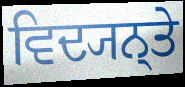
ਵਿਦ੍ਯਨ੍ਤੇ